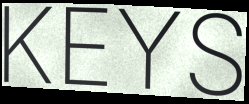
KEYS